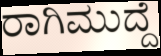
ರಾಗಿಮುದ್ದೆ